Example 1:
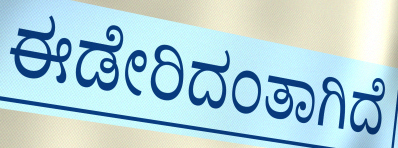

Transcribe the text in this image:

ಈಡೇರಿದಂತಾಗಿದೆ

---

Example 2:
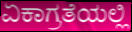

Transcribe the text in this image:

ಏಕಾಗ್ರತೆಯಲ್ಲಿ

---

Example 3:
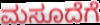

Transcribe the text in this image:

ಮಸೂದೆಗೆ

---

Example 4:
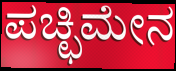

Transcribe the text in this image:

ಪಚ್ಛಿಮೇನ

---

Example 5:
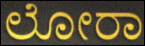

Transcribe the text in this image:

ಲೋರಾ